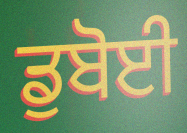
ਡੁਬੋਈ